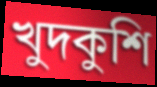
খুদকুশি